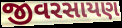
જીવરસાયણ